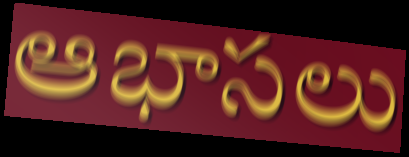
ఆభాసలు